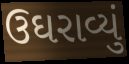
ઉઘરાવ્યું